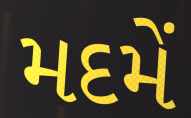
મદમેં